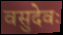
वसुदेवः